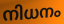
നിധനം